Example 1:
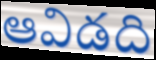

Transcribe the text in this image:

ఆవిడది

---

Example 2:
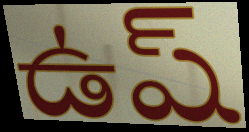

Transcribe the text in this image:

ఉష్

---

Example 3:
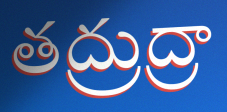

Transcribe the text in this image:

తద్రుద్రా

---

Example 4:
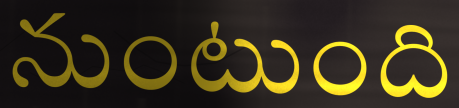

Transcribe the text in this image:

నుంటుంది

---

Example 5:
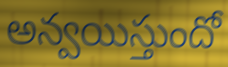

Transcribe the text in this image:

అన్వయిస్తుందో